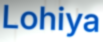
Lohiya